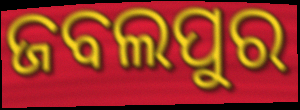
ଜବଲପୁର